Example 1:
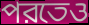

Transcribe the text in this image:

পরতেও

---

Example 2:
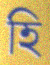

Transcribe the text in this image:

হি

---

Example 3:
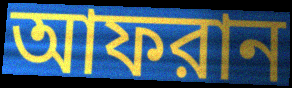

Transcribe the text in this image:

আফরান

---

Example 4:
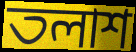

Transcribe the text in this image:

তলাশ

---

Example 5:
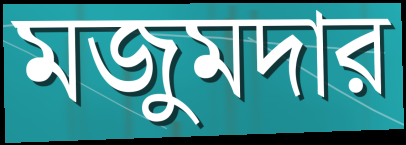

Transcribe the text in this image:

মজুমদার